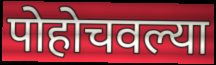
पोहोचवल्या